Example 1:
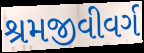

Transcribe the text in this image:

શ્રમજીવીવર્ગ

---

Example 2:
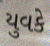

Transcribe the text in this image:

યુવકે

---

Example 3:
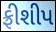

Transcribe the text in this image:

ફ્રીશીપ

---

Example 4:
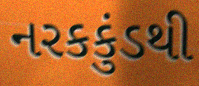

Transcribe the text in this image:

નરકકુંડથી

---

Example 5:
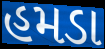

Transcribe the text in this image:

હમડા